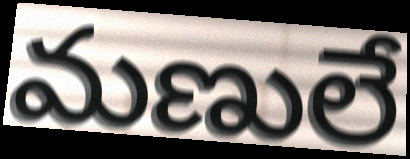
మణులే